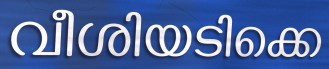
വീശിയടിക്കെ